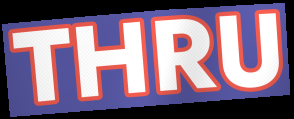
THRU